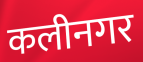
कलीनगर